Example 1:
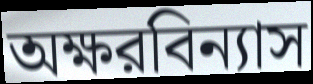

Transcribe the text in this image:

অক্ষরবিন্যাস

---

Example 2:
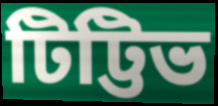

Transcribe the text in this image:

টিট্টিভ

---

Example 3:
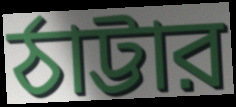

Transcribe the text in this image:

ঠাট্টার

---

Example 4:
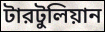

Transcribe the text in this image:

টারটুলিয়ান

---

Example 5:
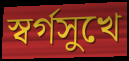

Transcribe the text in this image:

স্বর্গসুখে